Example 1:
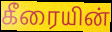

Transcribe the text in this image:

கீரையின்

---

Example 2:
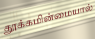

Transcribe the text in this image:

தூக்கமின்மையால்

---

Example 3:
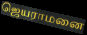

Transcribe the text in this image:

ஜெயராமனை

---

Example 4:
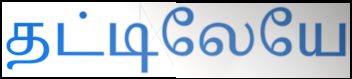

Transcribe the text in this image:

தட்டிலேயே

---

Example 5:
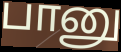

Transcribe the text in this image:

பானு